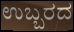
ಉಬ್ಬರದ